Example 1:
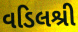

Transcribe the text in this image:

વડિલશ્રી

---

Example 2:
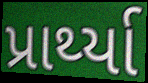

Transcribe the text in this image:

પ્રાર્થ્યા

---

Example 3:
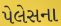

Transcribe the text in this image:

પેલેસના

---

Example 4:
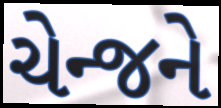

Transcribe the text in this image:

ચેન્જને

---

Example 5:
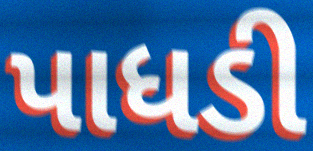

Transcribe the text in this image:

પાધડી